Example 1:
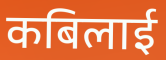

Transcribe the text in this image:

कबिलाई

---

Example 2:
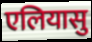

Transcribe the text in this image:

एलियासु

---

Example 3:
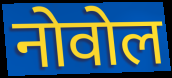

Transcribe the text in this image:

नोवोल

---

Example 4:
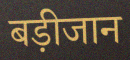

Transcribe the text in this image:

बड़ीजान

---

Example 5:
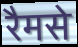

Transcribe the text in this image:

रैमसे